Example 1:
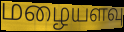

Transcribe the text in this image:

மழையளவு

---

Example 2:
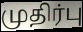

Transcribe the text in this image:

முதிர்பு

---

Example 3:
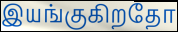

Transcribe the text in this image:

இயங்குகிறதோ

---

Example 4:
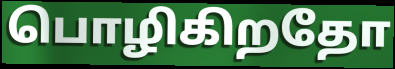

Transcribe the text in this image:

பொழிகிறதோ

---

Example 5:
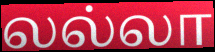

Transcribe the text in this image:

லல்லா